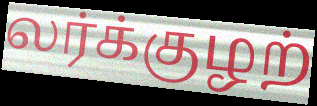
லர்க்குழற்